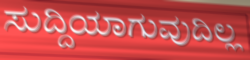
ಸುದ್ದಿಯಾಗುವುದಿಲ್ಲ